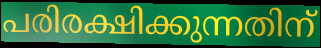
പരിരക്ഷിക്കുന്നതിന്